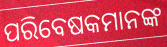
ପରିବେଷକମାନଙ୍କ